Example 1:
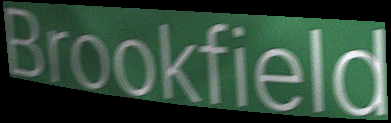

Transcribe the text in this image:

Brookfield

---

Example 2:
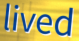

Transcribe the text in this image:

lived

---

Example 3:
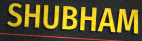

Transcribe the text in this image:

SHUBHAM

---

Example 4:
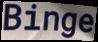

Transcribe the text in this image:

Binge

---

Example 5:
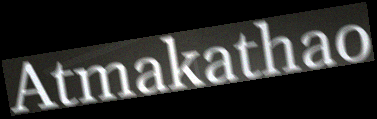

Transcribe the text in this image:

Atmakathao